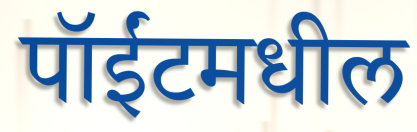
पॉईंटमधील